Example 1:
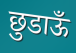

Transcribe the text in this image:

छुडाऊँ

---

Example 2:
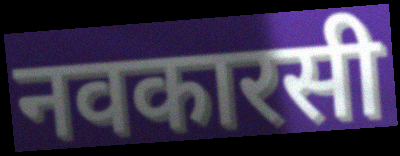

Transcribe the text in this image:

नवकारसी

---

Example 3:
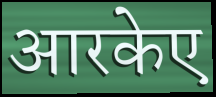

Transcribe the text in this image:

आरकेए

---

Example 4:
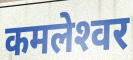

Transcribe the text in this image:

कमलेश्‍वर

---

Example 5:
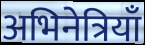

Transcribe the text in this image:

अभिनेत्रियाँ